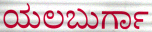
ಯಲಬುರ್ಗಾ